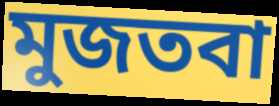
মুজতবা